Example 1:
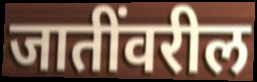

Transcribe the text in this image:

जातींवरील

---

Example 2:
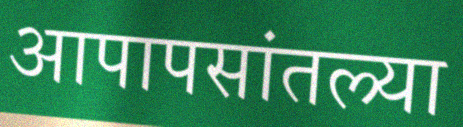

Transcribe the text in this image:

आपापसांतल्या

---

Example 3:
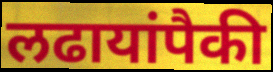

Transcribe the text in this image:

लढायांपैकी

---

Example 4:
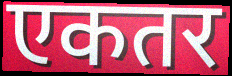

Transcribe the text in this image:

एकतर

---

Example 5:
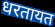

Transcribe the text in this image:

धरतायत